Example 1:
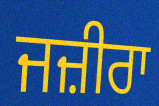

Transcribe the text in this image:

ਜਜ਼ੀਰਾ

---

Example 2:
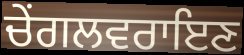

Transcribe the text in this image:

ਚੇਂਗਲਵਰਾਇਣ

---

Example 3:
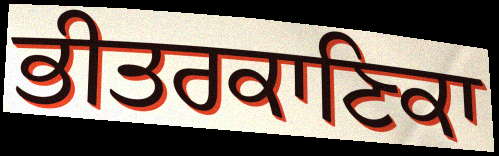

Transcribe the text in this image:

ਭੀਤਰਕਾਣਿਕਾ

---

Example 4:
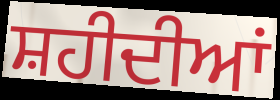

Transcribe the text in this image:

ਸ਼ਹੀਦੀਆਂ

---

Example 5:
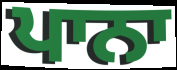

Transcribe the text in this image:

ਪਾਨਾ